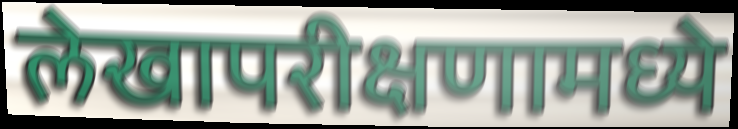
लेखापरीक्षणामध्ये